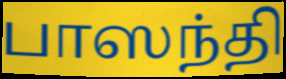
பாஸந்தி